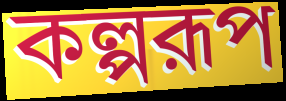
কল্পরূপ